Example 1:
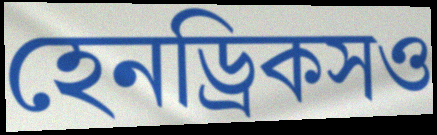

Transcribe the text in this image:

হেনড্রিকসও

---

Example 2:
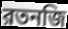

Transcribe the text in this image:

রতনজি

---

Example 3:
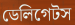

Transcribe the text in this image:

ডেলিগেটস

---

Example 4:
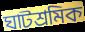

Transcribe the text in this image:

ঘাটশ্রমিক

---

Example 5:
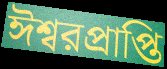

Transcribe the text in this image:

ঈশ্বরপ্রাপ্তি